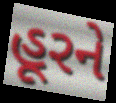
હૂરને